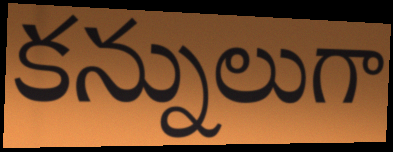
కన్నులుగా